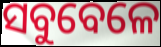
ସବୁବେଳେ